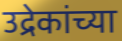
उद्रेकांच्या